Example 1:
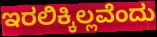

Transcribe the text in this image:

ಇರಲಿಕ್ಕಿಲ್ಲವೆಂದು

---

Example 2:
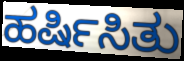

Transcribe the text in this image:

ಹರ್ಷಿಸಿತು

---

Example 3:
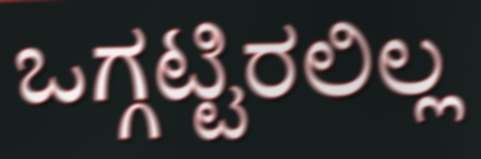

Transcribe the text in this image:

ಒಗ್ಗಟ್ಟಿರಲಿಲ್ಲ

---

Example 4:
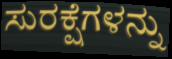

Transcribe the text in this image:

ಸುರಕ್ಷೆಗಳನ್ನು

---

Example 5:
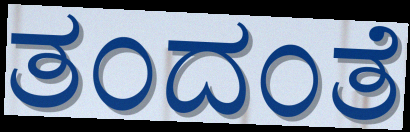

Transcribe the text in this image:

ತಂದಂತೆ